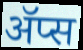
ॲप्स